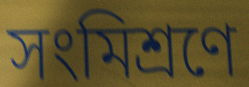
সংমিশ্রণে